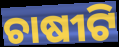
ଚାଷୀଟି